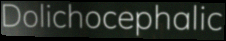
Dolichocephalic